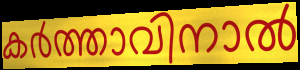
കർത്താവിനാൽ